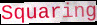
Squaring